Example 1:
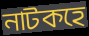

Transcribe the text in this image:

নাটকহে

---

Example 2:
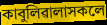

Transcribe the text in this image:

কাবুলিৱালাসকলে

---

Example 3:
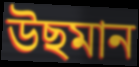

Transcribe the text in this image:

উছমান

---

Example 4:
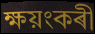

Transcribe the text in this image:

ক্ষয়ংকৰী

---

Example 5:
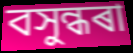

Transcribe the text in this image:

বসুন্ধৰা